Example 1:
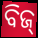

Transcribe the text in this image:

ବିଜ୍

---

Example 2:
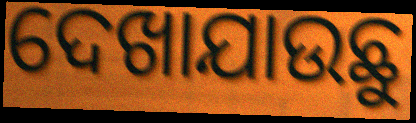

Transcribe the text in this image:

ଦେଖାଯାଉଛୁ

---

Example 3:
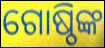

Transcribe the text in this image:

ଗୋଷ୍ଠିଙ୍କ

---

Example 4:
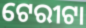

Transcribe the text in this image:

ଟେରୀଟା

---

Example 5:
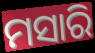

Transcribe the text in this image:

ମସାରି